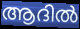
ആദിൽ